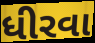
ધીરવા